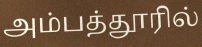
அம்பத்தூரில்